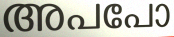
അപപോ